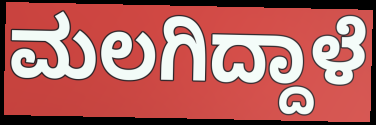
ಮಲಗಿದ್ದಾಳೆ